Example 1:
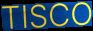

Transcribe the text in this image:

TISCO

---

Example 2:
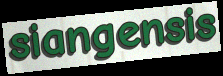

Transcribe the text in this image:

siangensis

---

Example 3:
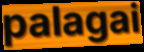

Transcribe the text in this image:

palagai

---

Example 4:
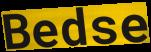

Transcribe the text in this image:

Bedse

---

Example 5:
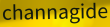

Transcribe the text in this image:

channagide